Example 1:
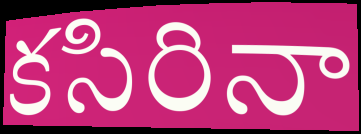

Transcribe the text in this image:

కసిరినా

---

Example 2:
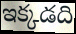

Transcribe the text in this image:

ఇక్కడది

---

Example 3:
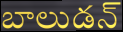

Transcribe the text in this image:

బాలుడన్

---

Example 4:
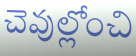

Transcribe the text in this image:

చెవుల్లోంచి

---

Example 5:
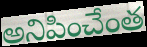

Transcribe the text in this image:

అనిపించేంత